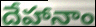
దేహానాం